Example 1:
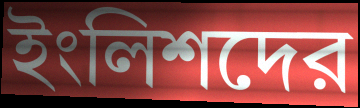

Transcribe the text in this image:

ইংলিশদের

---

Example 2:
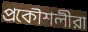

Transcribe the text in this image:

প্রকৌশলীরা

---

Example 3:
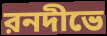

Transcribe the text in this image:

রনদীভে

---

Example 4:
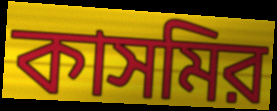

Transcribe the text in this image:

কাসমির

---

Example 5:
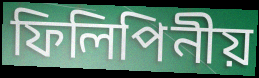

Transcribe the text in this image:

ফিলিপিনীয়